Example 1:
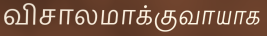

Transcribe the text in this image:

விசாலமாக்குவாயாக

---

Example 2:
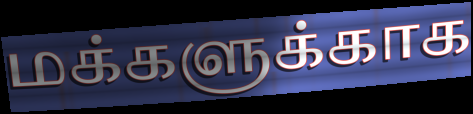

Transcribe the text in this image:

மக்களுக்காக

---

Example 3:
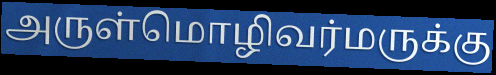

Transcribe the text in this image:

அருள்மொழிவர்மருக்கு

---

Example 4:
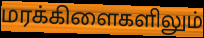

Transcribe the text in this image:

மரக்கிளைகளிலும்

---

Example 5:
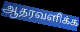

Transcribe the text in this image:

ஆதரவளிக்க